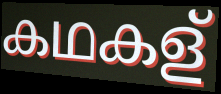
കഥകള്